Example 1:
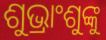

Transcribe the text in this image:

ଶୁଭ୍ରାଂଶୁଙ୍କୁ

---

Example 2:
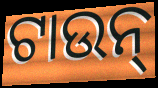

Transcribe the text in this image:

ଟାଉନ୍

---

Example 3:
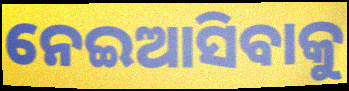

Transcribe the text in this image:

ନେଇଆସିବାକୁ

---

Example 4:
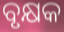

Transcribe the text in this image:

ବୃକ୍ଷକ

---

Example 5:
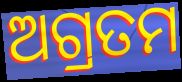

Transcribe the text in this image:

ଅଗ୍ରତମ